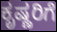
ಕೃಷ್ಣರಿಗೆ